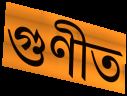
গুণীত